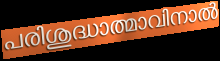
പരിശുദ്ധാത്മാവിനാൽ